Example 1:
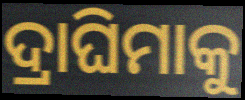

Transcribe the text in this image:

ଦ୍ରାଘିମାକୁ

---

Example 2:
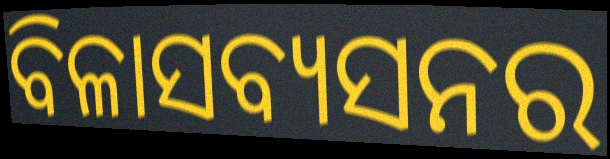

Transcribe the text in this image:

ବିଳାସବ୍ୟସନର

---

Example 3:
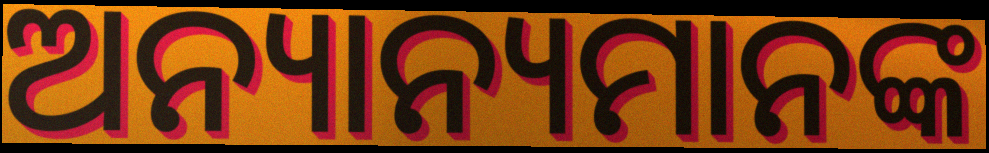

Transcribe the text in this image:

ଅନ୍ୟାନ୍ୟମାନଙ୍କ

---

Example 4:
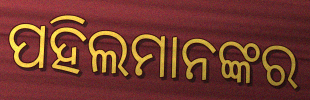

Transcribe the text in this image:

ପହିଲମାନଙ୍କର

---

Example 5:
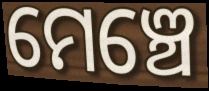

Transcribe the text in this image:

ମେଞ୍ଚେ